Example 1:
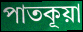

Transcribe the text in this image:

পাতকূয়া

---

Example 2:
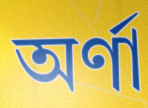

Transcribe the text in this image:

অর্ণা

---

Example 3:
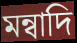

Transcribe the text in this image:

মন্বাদি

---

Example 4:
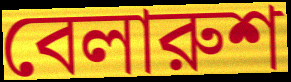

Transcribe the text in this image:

বেলারুশ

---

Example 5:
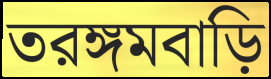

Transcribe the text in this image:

তরঙ্গমবাড়ি